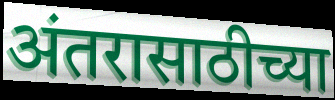
अंतरासाठीच्या